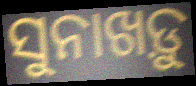
ସୁନାଖଡ଼ୁ